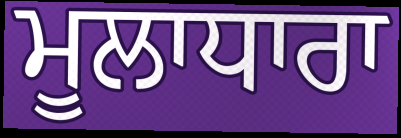
ਮੂਲਾਧਾਰਾ